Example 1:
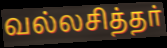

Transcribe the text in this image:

வல்லசித்தர்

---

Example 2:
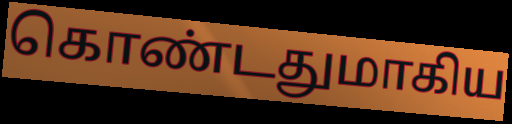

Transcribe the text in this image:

கொண்டதுமாகிய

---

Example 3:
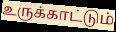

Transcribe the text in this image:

உருக்காட்டும்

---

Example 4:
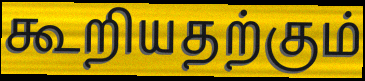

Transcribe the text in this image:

கூறியதற்கும்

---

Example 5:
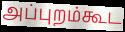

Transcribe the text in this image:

அப்புறம்கூட